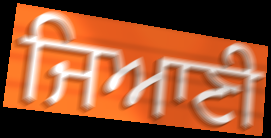
ਜਿਆਣੀ